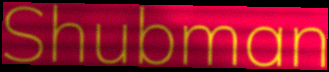
Shubman